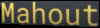
Mahout